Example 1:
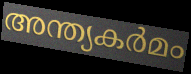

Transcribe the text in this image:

അന്ത്യകർമം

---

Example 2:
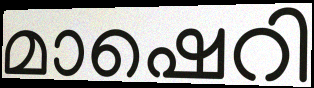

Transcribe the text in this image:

മാഷെറി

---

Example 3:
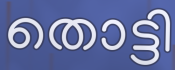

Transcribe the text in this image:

തൊട്ടി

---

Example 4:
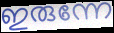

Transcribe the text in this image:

ഇരുന്നേ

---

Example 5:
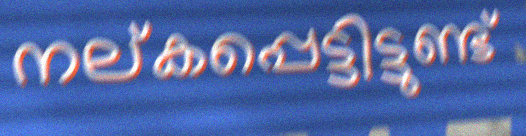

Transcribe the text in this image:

നല്കപ്പെട്ടിട്ടുണ്ട്